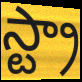
స్ట్రా